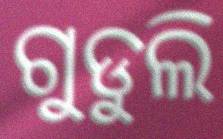
ଗୁଡୁଲି